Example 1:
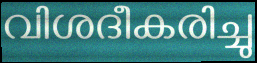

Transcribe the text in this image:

വിശദീകരിച്ചു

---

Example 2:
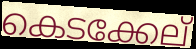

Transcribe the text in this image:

കെടക്കേല്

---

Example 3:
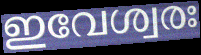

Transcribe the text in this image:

ഇവേശ്വരഃ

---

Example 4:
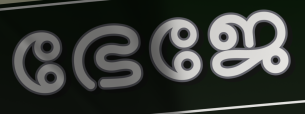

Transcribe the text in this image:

ഭേജേ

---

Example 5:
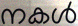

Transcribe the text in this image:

നകൾ